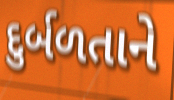
દુર્બળતાને